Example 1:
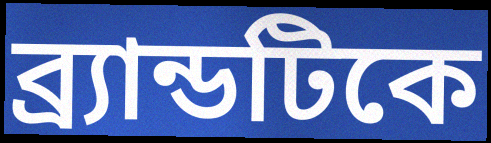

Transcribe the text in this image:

ব্র্যান্ডটিকে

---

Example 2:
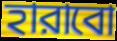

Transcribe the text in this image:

হারাবো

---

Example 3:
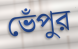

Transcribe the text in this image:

ভেঁপুর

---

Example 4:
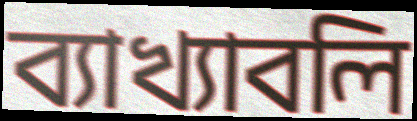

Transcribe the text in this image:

ব্যাখ্যাবলি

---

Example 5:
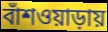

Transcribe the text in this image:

বাঁশওয়াড়ায়